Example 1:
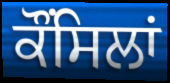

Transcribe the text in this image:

ਕੌਂਸਿਲਾਂ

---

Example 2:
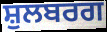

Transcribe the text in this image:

ਸ਼ੁਲਬਰਗ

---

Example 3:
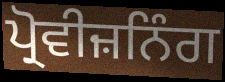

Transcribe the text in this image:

ਪ੍ਰੋਵੀਜ਼ਨਿੰਗ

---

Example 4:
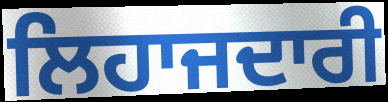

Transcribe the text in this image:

ਲਿਹਾਜਦਾਰੀ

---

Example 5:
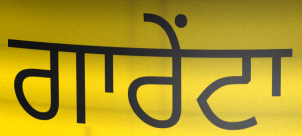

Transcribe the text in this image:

ਗਾਰੇਂਟਾ